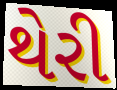
થેરી